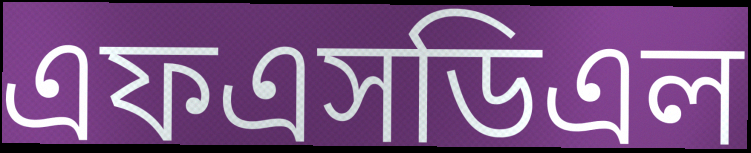
এফএসডিএল